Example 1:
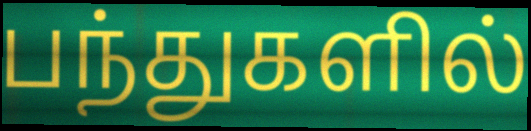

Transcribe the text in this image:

பந்துகளில்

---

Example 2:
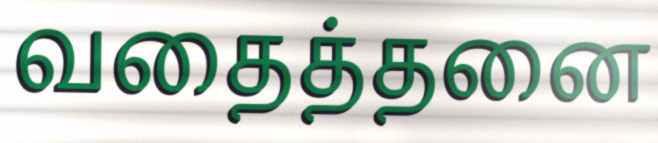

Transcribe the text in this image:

வதைத்தனை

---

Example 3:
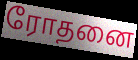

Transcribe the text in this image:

ரோதனை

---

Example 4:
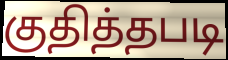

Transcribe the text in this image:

குதித்தபடி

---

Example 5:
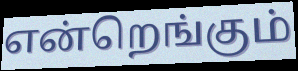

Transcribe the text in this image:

என்றெங்கும்